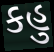
કહુ